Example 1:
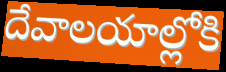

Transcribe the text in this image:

దేవాలయాల్లోకి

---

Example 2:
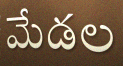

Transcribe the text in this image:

మేడల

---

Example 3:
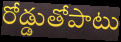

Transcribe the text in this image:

రోడ్డుతోపాటు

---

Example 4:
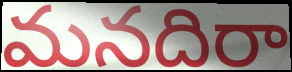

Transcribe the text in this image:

మనదిరా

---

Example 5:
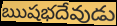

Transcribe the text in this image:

ఋషభదేవుడు